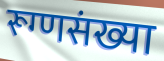
रूग्णसंख्या